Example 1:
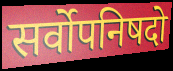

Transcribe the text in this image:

सर्वोपनिषदो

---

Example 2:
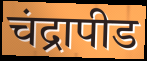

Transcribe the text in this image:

चंद्रापीड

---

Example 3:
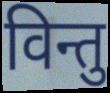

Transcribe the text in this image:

विन्तु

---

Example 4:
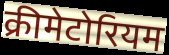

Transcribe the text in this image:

क्रीमेटोरियम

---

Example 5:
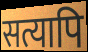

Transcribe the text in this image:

सत्यापि